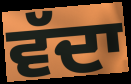
ਵੱਦਾ